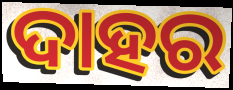
ଦାହର